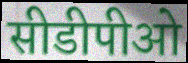
सीडीपीओ